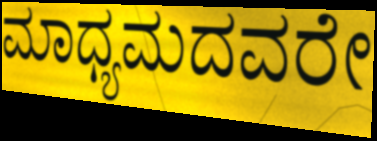
ಮಾಧ್ಯಮದವರೇ